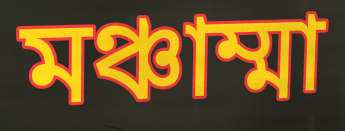
মঞ্চাম্মা